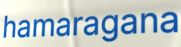
hamaragana